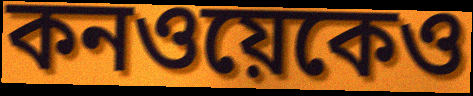
কনওয়েকেও